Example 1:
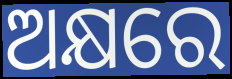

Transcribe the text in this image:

ଅକ୍ଷରେ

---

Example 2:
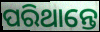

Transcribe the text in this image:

ପରିଥାନ୍ତେ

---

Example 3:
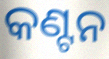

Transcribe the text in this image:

କଣ୍ଟନ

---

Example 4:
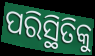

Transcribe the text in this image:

ପରିସ୍ଥିତିକୁ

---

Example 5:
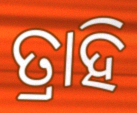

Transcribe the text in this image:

ତ୍ରାହି